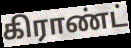
கிராண்ட்